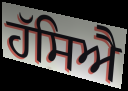
ਹੱਸਿਐ